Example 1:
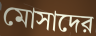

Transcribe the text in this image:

মোসাদের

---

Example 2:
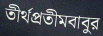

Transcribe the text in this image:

তীর্থপ্রতীমবাবুর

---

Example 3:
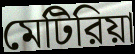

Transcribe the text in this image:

মেটিরিয়া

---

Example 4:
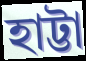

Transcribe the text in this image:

হাট্টা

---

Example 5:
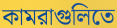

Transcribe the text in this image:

কামরাগুলিতে